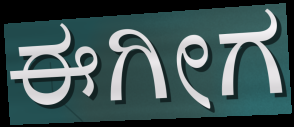
ಈಗೀಗ